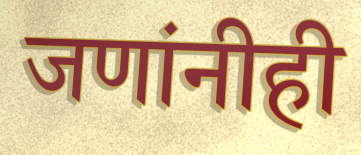
जणांनीही